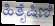
ಹಿತೈಷಿಣಿ